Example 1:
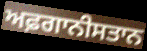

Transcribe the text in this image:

ਅਫ਼ਗਾਨੀਸਤਾਨ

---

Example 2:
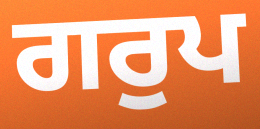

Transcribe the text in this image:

ਗਰੁਪ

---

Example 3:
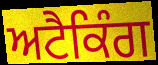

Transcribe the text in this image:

ਅਟੈਕਿੰਗ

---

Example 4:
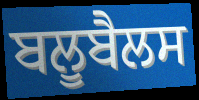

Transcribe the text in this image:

ਬਲੂਬੈਲਸ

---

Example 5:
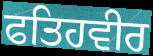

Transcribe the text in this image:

ਫਤਿਹਵੀਰ